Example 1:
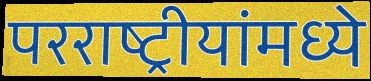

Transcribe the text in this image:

परराष्ट्रीयांमध्ये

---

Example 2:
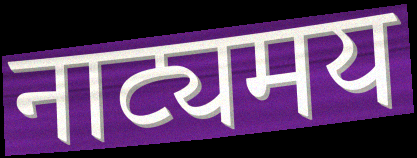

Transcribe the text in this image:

नाट्यमय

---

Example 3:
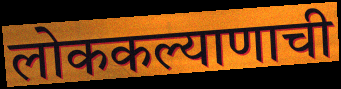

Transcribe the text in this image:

लोककल्याणाची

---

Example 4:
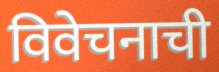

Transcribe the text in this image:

विवेचनाची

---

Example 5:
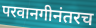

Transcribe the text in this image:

परवानगीनंतरच